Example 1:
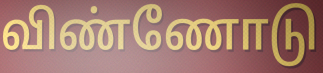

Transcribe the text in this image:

விண்ணோடு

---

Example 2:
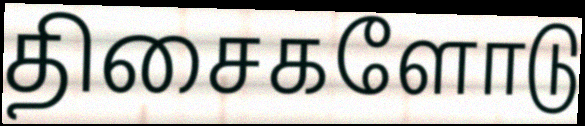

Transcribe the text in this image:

திசைகளோடு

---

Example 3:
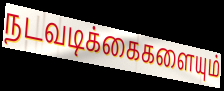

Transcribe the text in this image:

நடவடிக்கைகளையும்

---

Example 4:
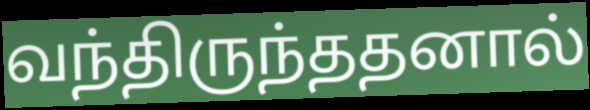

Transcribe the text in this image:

வந்திருந்ததனால்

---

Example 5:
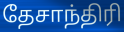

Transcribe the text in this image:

தேசாந்திரி